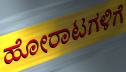
ಹೋರಾಟಗಳಿಗೆ